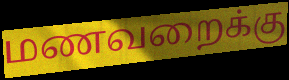
மணவறைக்கு